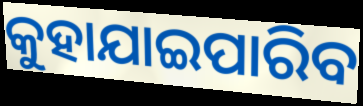
କୁହାଯାଇପାରିବ